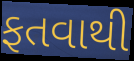
ફતવાથી